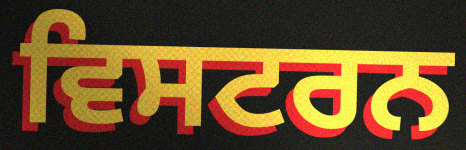
ਵਿਸਟਰਨ